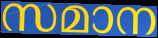
സമാന